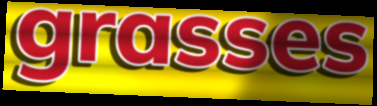
grasses